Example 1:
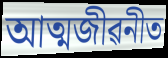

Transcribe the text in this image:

আত্মজীৱনীত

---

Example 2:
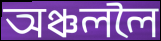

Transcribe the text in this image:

অঞ্চললৈ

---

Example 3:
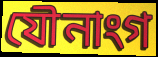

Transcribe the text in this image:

যৌনাংগ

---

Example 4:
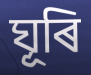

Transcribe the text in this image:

ঘূৰি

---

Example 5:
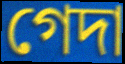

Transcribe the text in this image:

গেদা